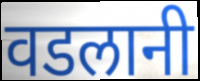
वडलानी